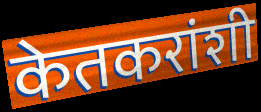
केतकरांशी